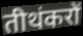
तीथंकरों